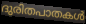
ദുരിതപാതകൾ